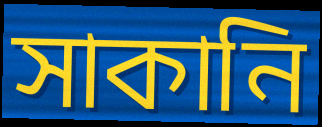
সাকানি